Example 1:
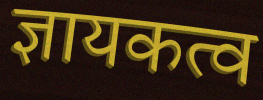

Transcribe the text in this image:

ज्ञायकत्व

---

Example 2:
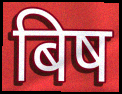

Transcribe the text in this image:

बिष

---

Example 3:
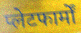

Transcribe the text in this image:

प्लेटफार्मों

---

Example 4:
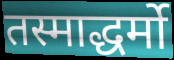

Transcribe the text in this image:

तस्माद्धर्मो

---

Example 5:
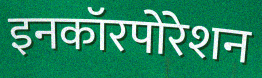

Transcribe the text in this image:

इनकॉरपोरेशन